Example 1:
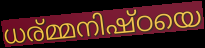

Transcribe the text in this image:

ധര്മ്മനിഷ്ഠയെ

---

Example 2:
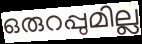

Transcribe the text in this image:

ഒരുറപ്പുമില്ല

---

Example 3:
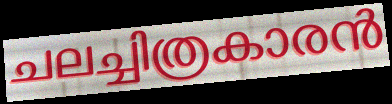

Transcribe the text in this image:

ചലച്ചിത്രകാരൻ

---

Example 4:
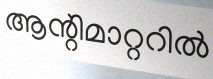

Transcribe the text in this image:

ആന്റിമാറ്ററിൽ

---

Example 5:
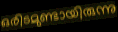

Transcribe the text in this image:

ഒരിടമുണ്ടായിരുന്നു